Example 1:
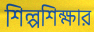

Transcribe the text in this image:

শিল্পশিক্ষার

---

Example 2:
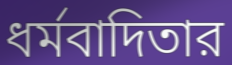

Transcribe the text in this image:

ধর্মবাদিতার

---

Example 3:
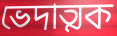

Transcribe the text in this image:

ভেদাত্মক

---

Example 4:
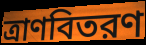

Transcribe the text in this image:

ত্রাণবিতরণ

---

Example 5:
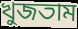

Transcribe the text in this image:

খুজতাম